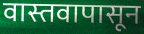
वास्तवापासून